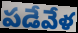
పడేవేళ